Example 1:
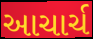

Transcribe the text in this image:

આચાર્ચ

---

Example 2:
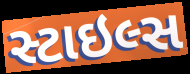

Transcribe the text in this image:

સ્ટાઇલ્સ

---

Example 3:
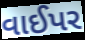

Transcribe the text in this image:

વાઈપર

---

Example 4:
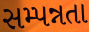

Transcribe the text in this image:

સમ્પન્નતા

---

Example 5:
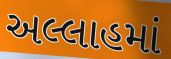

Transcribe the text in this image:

અલ્લાહમાં